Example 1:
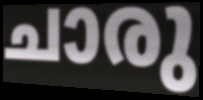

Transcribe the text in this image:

ചാരു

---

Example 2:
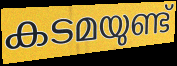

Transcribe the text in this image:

കടമയുണ്ട്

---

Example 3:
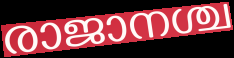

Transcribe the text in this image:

രാജാനശ്ച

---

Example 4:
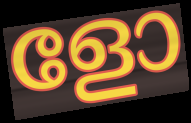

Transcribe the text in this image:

ളോ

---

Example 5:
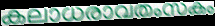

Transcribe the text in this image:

കലാധരാവതംസകം